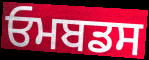
ਓਮਬਡਸ